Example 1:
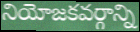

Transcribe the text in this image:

నియోజకవర్గాన్ని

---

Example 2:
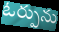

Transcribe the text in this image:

ఓర్పును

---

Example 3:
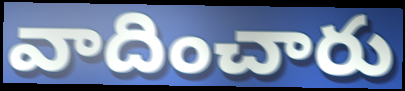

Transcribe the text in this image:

వాదించారు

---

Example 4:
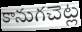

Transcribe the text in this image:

కానుగచెట్ల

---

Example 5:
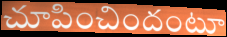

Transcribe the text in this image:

చూపించిందంటూ